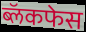
ब्लॅकफेस